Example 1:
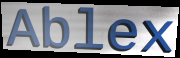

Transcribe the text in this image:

Ablex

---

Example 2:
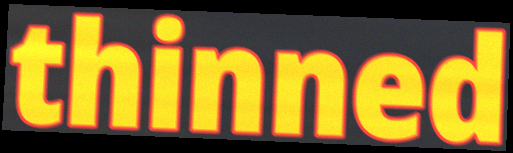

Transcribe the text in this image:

thinned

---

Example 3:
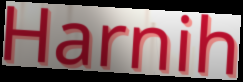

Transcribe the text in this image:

Harnih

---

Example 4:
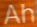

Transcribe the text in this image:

Ah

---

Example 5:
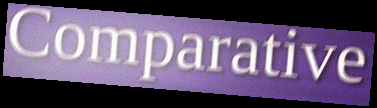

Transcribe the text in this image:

Comparative